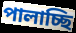
পালাচ্ছি